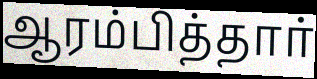
ஆரம்பித்தார்